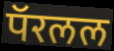
पॅरलल